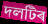
দলটিৰ